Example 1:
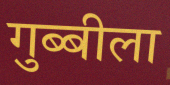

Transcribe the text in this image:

गुब्बीला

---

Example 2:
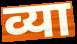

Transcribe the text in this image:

व्या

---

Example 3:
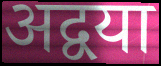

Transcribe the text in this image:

अद्वया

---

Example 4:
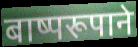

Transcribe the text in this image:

बाष्परूपाने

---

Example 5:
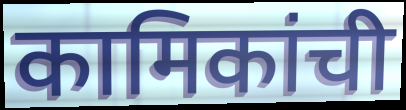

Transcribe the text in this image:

कामिकांची